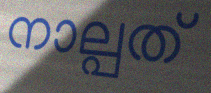
നാല്പത്